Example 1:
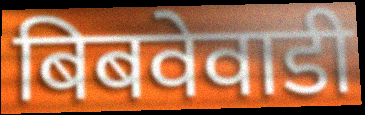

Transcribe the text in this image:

बिबवेवाडी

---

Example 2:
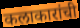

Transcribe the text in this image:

कलाकारांची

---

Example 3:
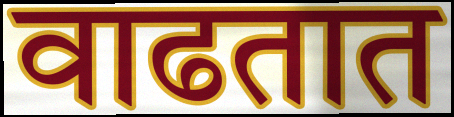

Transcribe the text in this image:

वाढतात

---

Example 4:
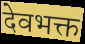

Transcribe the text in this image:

देवभक्त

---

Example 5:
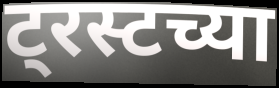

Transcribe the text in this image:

ट्रस्टच्या